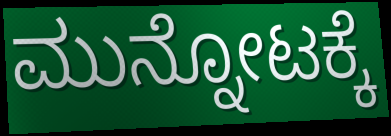
ಮುನ್ನೋಟಕ್ಕೆ